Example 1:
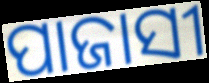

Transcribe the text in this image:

ପାଜାସୀ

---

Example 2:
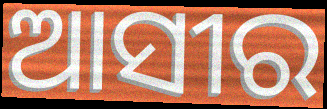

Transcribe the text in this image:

ଆସୀର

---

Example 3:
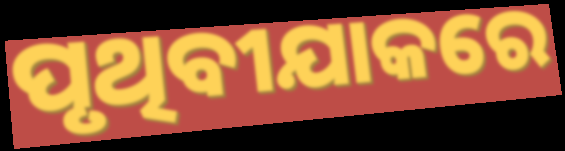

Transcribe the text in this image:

ପୃଥିବୀଯାକରେ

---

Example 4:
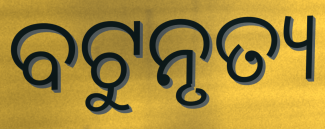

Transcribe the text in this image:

ବଟୁନୃତ୍ୟ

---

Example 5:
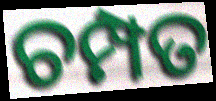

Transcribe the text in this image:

ଚମ୍ପତ